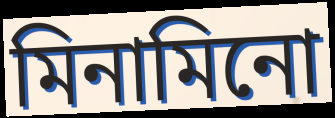
মিনামিনো